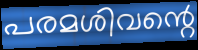
പരമശിവന്റെ